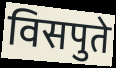
विसपुते